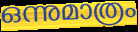
ഒന്നുമാത്രം